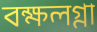
বক্ষলগ্না